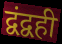
द्वंद्वही